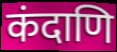
कंदाणि